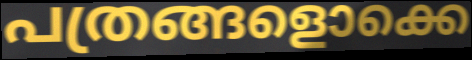
പത്രങ്ങളൊക്കെ